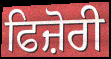
ਫਿਜ਼ੋਰੀ